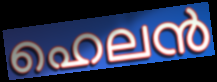
ഹെലൻ